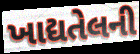
ખાદ્યતેલની